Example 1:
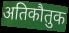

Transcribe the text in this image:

अतिकौतुक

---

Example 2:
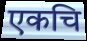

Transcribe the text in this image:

एकचि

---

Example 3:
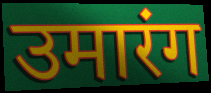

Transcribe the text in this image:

उमारंग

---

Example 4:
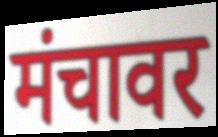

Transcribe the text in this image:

मंचावर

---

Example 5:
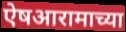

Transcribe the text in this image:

ऐषआरामाच्या